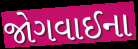
જોગવાઈના